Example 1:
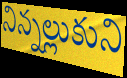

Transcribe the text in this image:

నిన్నల్లుకుని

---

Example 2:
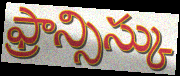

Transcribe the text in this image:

ఫ్రాన్సిస్కు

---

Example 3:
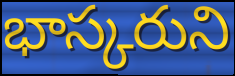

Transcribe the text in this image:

భాస్కరుని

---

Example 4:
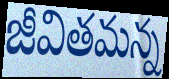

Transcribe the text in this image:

జీవితమన్న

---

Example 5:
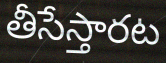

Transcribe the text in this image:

తీసేస్తారట